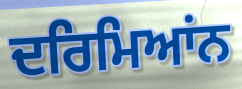
ਦਰਿਮਿਆਂਨ